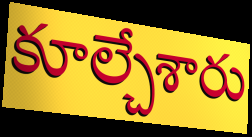
కూల్చేశారు